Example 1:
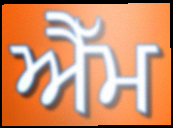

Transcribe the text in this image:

ਐੈੱਮ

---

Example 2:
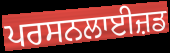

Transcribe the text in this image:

ਪਰਸਨਲਾਈਜ਼ਡ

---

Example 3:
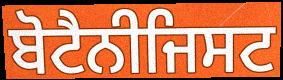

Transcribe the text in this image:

ਬੋਟੈਨੀਜਿਸਟ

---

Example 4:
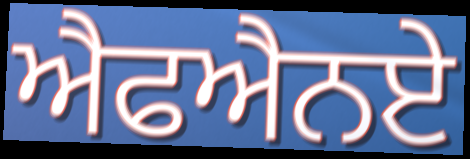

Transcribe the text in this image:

ਐਫਐਨਏ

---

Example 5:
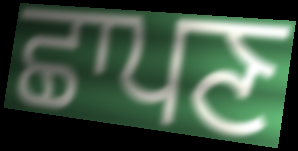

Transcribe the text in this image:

ਛਾਪਣ